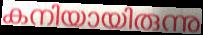
കനിയായിരുന്നു